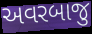
અવરબાજુ